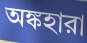
অঙ্কহারা